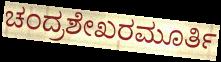
ಚಂದ್ರಶೇಖರಮೂರ್ತಿ